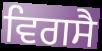
ਵਿਗਸੈ